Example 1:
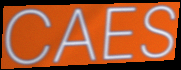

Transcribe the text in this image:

CAES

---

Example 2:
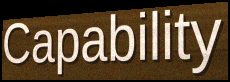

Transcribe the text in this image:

Capability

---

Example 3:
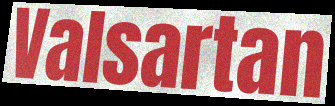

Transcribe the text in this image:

Valsartan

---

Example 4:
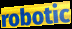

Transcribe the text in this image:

robotic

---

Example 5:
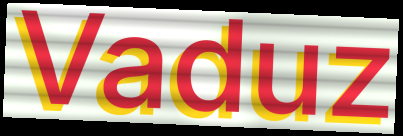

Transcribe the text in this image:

Vaduz